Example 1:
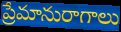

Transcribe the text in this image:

ప్రేమానురాగాలు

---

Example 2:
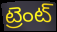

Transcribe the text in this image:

ట్రెంట్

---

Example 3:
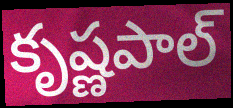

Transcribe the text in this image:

కృష్ణపాల్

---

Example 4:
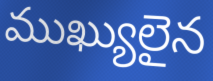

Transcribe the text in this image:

ముఖ్యులైన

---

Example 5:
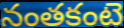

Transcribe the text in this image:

నంతకంటె